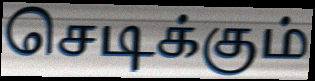
செடிக்கும்